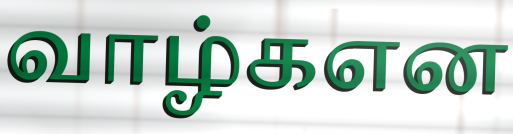
வாழ்கஎன